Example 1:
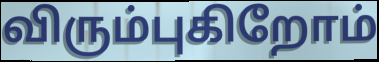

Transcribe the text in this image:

விரும்புகிறோம்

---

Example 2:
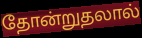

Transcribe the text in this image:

தோன்றுதலால்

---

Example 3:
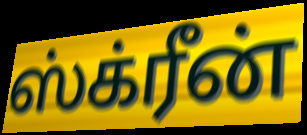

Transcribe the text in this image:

ஸ்க்ரீன்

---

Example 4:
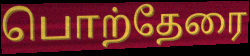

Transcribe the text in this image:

பொற்தேரை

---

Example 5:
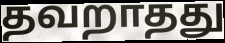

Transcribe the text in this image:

தவறாதது